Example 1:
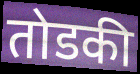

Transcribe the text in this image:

तोडकी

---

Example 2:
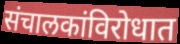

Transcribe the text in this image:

संचालकांविरोधात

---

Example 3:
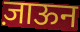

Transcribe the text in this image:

ज़ाऊन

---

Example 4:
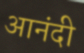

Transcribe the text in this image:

आनंदी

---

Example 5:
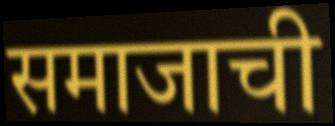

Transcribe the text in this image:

समाजाची